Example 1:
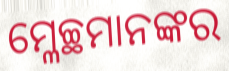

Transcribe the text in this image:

ମ୍ଳେଚ୍ଛମାନଙ୍କର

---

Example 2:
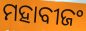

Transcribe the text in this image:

ମହାବୀଜଂ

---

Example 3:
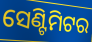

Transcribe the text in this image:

ସେଣ୍ଟିମିଟର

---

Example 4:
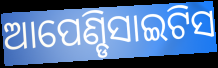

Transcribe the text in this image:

ଆପେଣ୍ଡିସାଇଟିସ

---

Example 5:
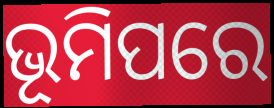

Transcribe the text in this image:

ଭୂମିପରେ